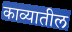
काव्यातील